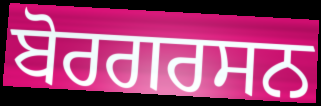
ਬੋਰਗਰਸਨ